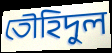
তৌহিদুল